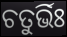
ଚତୁର୍ଭିଃ